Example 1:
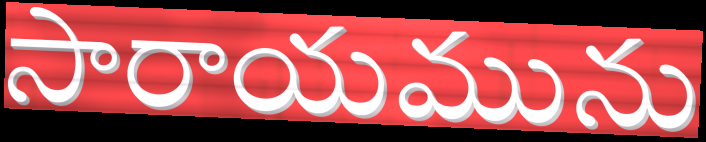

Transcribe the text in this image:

సారాయమును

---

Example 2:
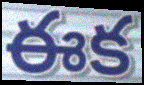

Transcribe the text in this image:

ఈక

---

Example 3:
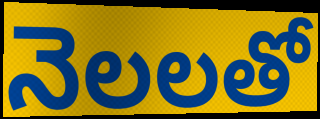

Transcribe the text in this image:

నెలలతో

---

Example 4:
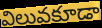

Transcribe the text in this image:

విలువకూడా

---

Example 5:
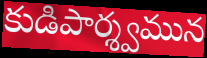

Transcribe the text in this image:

కుడిపార్శ్వమున